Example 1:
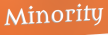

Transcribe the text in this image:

Minority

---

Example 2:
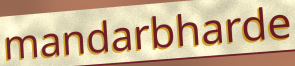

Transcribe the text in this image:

mandarbharde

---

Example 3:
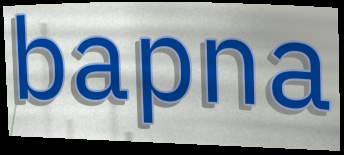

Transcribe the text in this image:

bapna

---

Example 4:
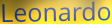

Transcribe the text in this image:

Leonardo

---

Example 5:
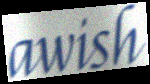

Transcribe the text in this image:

awish